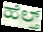
ಹೆಲ್ತ್